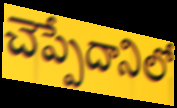
చెప్పేదానిలో